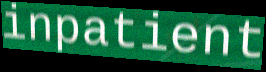
inpatient